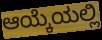
ಆಯ್ಕೆಯಲ್ಲಿ